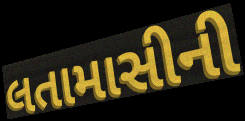
લતામાસીની